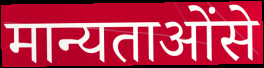
मान्यताओंसे